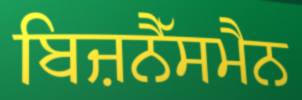
ਬਿਜ਼ਨੈੱਸਮੈਨ